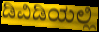
ಡಿವಿಡಿಯಲ್ಲಿ